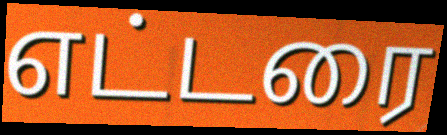
எட்டரை